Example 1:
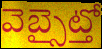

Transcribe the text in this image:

వెబ్సైట్తో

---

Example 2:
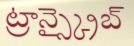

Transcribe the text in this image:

ట్రాన్స్క్రైబ్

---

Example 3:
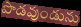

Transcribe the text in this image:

పొడవుండును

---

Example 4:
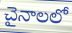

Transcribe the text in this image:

చైనాలలో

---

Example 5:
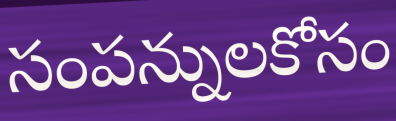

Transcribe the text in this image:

సంపన్నులకోసం